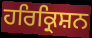
ਹਰਿਕ੍ਰਿਸ਼ਨ